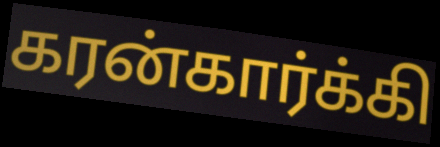
கரன்கார்க்கி